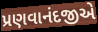
પ્રણવાનંદજીએ